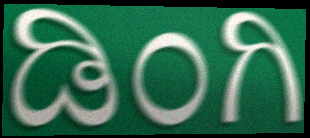
ಡಿಂಗಿ